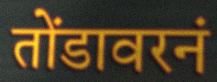
तोंडावरनं